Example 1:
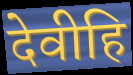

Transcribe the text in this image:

देवीहि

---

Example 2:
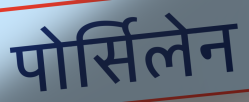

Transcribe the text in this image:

पोर्सिलेन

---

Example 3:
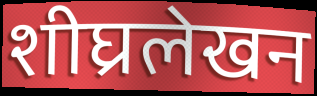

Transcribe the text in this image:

शीघ्रलेखन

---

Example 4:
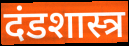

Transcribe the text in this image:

दंडशास्त्र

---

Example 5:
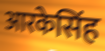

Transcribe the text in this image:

आरकेसिंह